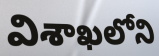
విశాఖలోని